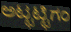
ಅಟ್ಟಟ್ಟಿಗಂ